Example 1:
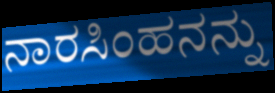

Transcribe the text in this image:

ನಾರಸಿಂಹನನ್ನು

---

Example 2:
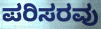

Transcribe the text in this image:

ಪರಿಸರವು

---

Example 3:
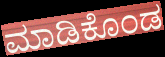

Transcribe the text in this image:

ಮಾಡಿಕೊಂಡ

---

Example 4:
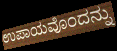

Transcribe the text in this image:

ಉಪಾಯವೊಂದನ್ನು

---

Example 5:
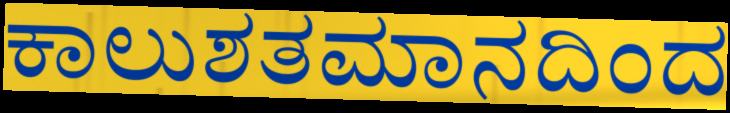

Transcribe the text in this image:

ಕಾಲುಶತಮಾನದಿಂದ